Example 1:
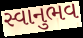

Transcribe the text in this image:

સ્વાનુભવ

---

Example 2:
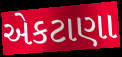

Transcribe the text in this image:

એકટાણા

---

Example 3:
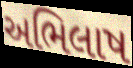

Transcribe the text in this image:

અભિલાષ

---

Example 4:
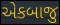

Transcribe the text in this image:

એકબાજુ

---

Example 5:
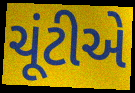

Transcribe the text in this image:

ચૂંટીએ